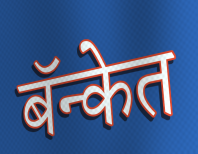
बॅन्केत